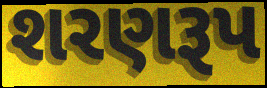
શરણરૂપ